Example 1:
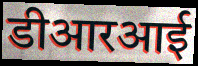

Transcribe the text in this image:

डीआरआई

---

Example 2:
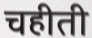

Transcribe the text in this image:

चहीती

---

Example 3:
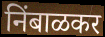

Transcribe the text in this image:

निंबाळकर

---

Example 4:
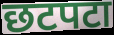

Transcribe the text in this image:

छटपटा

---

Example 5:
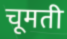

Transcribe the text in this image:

चूमती